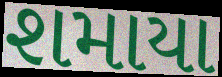
શમાયા